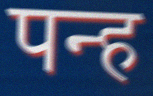
पन्ह